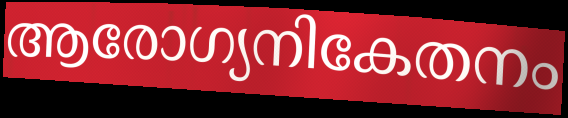
ആരോഗ്യനികേതനം